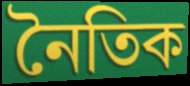
নৈতিক